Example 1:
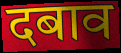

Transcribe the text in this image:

दबाव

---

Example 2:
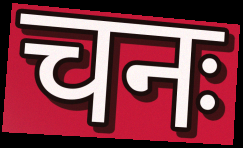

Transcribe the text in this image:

चनः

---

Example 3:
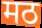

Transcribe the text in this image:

मठ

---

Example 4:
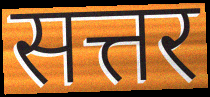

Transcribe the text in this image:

सत्तर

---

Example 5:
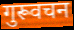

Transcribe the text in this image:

गुरूवचन